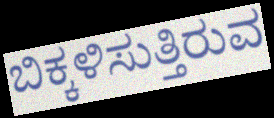
ಬಿಕ್ಕಳಿಸುತ್ತಿರುವ